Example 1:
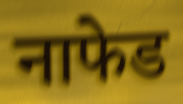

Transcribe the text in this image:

नाफेड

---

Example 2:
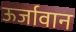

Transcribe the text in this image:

ऊर्जावान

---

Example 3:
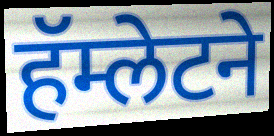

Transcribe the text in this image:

हॅम्लेटने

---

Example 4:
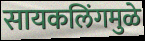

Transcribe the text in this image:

सायकलिंगमुळे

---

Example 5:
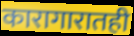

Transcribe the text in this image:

कारागारातही